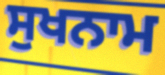
ਸੁਖਨਾਮ